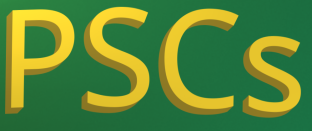
PSCs